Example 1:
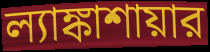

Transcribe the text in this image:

ল্যাঙ্কাশায়ার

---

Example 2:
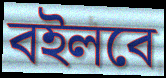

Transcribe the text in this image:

বইলবে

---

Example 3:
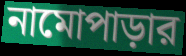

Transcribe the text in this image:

নামোপাড়ার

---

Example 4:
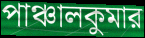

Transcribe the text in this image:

পাঞ্চালকুমার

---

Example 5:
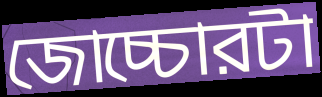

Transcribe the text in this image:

জোচ্চোরটা